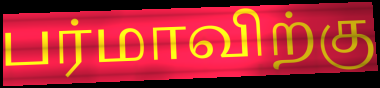
பர்மாவிற்கு